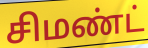
சிமண்ட்